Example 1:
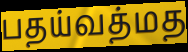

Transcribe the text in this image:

பதய்வத்மத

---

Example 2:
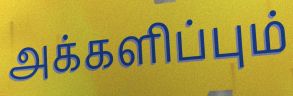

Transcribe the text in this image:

அக்களிப்பும்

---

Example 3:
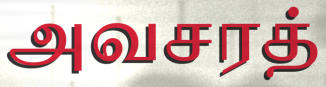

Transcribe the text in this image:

அவசரத்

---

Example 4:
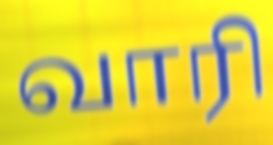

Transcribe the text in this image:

வாரி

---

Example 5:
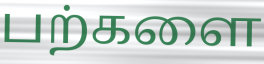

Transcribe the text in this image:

பற்களை